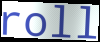
roll